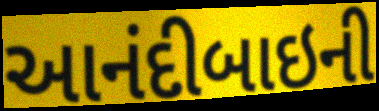
આનંદીબાઇની